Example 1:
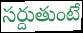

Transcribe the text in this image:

సర్దుతుంటే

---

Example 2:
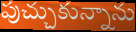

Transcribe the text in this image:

పుచ్చుకున్నాను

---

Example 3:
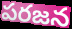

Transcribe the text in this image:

పరజన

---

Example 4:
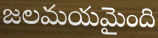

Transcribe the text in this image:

జలమయమైంది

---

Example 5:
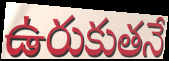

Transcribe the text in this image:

ఉరుకుతనే